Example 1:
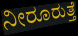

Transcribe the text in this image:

ನೀರೂರುತ್ತೆ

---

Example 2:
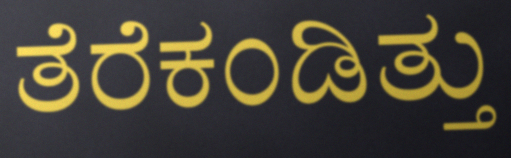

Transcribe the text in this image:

ತೆರೆಕಂಡಿತ್ತು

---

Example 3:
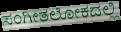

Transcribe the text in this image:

ಸಂಗೀತಲೋಕದಲ್ಲಿ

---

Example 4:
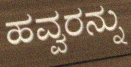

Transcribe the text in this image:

ಹವ್ವರನ್ನು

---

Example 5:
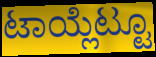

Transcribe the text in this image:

ಟಾಯ್ಲೆಟ್ಟೂ